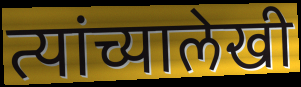
त्यांच्यालेखी